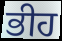
ਭੀਹ